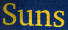
Suns